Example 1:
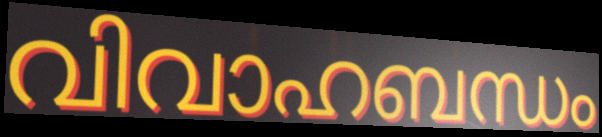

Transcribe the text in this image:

വിവാഹബന്ധം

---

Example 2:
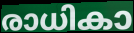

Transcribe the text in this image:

രാധികാ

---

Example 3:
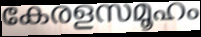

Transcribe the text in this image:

കേരളസമൂഹം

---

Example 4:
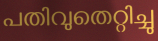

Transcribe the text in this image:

പതിവുതെറ്റിച്ചു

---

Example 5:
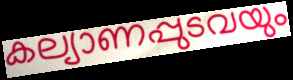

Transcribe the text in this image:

കല്യാണപ്പുടവയും